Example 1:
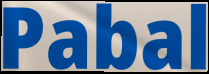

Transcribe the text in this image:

Pabal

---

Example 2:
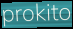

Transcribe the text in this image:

prokito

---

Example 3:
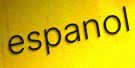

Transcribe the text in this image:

espanol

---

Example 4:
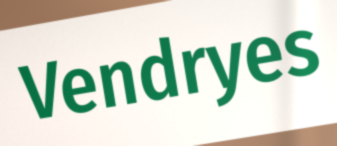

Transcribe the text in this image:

Vendryes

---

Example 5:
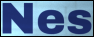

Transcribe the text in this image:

Nes